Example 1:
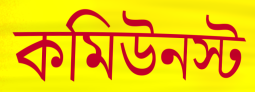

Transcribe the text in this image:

কমিউনস্ট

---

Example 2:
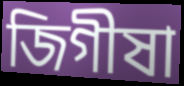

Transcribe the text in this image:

জিগীষা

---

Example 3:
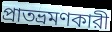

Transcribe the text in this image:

প্রাতভ্রমণকারী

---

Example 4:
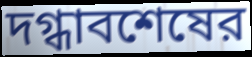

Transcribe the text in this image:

দগ্ধাবশেষের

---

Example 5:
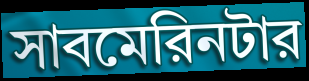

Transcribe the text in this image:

সাবমেরিনটার